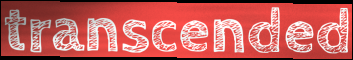
transcended